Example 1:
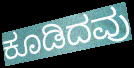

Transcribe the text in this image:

ಕೂಡಿದವು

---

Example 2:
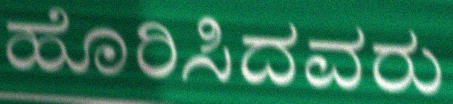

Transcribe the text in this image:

ಹೊರಿಸಿದವರು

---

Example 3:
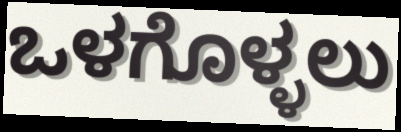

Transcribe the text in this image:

ಒಳಗೊಳ್ಳಲು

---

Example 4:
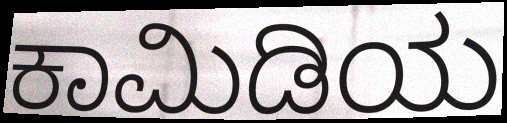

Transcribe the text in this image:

ಕಾಮಿಡಿಯ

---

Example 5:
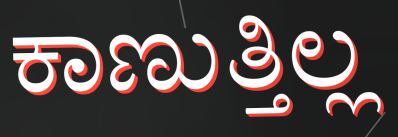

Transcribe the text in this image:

ಕಾಣುತ್ತಿಲ್ಲ